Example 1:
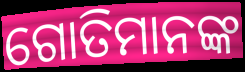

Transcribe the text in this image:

ଗୋତିମାନଙ୍କ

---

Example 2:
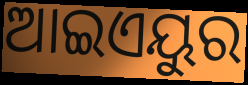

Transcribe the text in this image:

ଆଇଏୟୁର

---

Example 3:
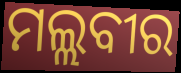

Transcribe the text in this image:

ମଲ୍ଲବୀର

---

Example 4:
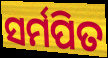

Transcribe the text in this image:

ସର୍ମପିତ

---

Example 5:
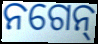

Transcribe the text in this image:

ନଗେନ୍